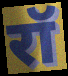
रॉ